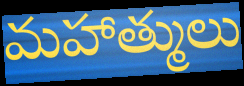
మహాత్ములు